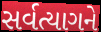
સર્વત્યાગને